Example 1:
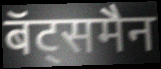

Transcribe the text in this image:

बॅट्समैन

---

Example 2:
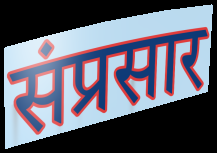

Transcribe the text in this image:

संप्रसार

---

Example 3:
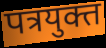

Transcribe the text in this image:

पत्रयुक्त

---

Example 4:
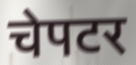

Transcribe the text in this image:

चेपटर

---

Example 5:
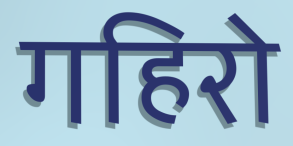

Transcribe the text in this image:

गहिरो